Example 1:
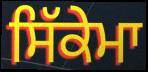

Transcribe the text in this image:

ਸਿੱਕੇਮਾ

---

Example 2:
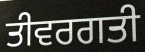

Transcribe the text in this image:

ਤੀਵਰਗਤੀ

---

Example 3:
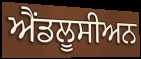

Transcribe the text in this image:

ਐਂਡਲੂਸੀਅਨ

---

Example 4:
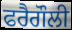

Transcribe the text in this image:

ਫਰੈਗੌਲੀ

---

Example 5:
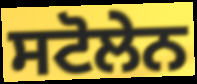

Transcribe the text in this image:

ਸਟੋਲੇਨ